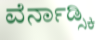
ವೆರ್ನಾಡ್ಸ್ಕಿ